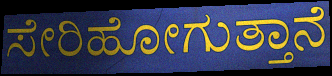
ಸೇರಿಹೋಗುತ್ತಾನೆ